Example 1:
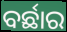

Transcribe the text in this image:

ବର୍ଛାର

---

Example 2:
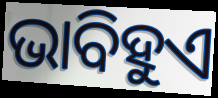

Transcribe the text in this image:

ଭାବିହୁଏ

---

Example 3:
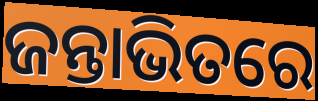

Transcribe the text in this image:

ଜନ୍ତାଭିତରେ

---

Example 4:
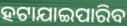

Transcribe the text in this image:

ହଟାଯାଇପାରିବ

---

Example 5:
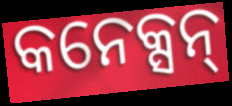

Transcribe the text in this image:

କନେକ୍ସନ୍